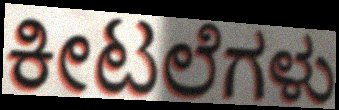
ಕೀಟಲೆಗಳು